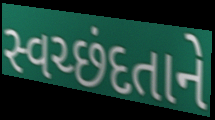
સ્વચ્છંદતાને